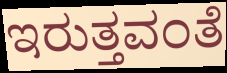
ಇರುತ್ತವಂತೆ